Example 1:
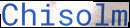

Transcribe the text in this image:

Chisolm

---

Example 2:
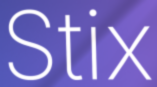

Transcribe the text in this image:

Stix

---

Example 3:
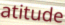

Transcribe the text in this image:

atitude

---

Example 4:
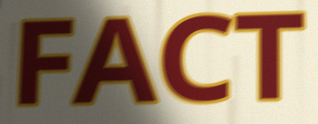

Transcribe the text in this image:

FACT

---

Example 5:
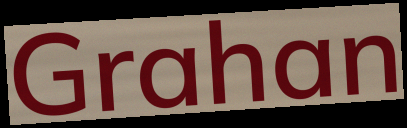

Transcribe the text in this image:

Grahan